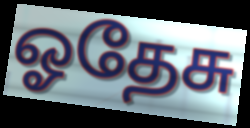
ஓதேசு